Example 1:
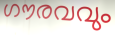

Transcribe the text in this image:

ഗൗരവവും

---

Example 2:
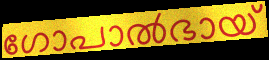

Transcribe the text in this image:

ഗോപാൽഭായ്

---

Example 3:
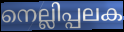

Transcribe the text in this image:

നെല്ലിപ്പലക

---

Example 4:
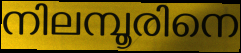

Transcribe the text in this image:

നിലമ്പൂരിനെ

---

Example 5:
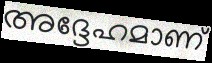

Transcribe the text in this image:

അദ്ദേഹമാണ്